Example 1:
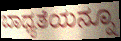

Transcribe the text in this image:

ಬಾಧ್ಯತೆಯನ್ನೂ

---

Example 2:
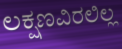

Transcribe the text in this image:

ಲಕ್ಷಣವಿರಲಿಲ್ಲ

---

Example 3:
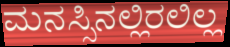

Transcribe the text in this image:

ಮನಸ್ಸಿನಲ್ಲಿರಲಿಲ್ಲ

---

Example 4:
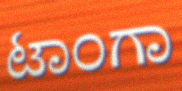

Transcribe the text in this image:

ಟಾಂಗಾ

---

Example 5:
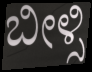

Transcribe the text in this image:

ಬೀಳ್ಸಿ